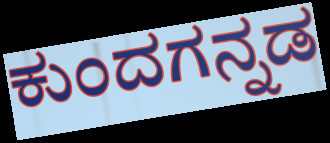
ಕುಂದಗನ್ನಡ